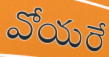
వోయరే